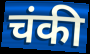
चंकी